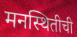
मनस्थितीची